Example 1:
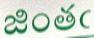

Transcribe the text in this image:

జింతఁ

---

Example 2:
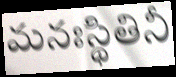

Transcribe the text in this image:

మనఃస్థితినీ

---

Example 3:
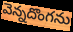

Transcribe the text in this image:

వెన్నదొంగను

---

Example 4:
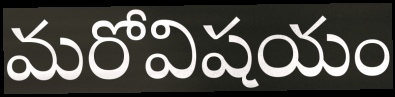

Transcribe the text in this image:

మరోవిషయం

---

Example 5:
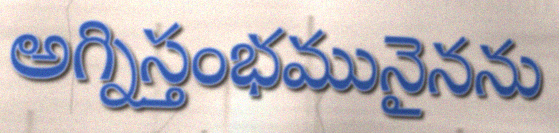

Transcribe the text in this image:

అగ్నిస్తంభమునైనను